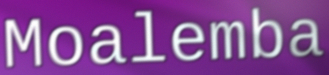
Moalemba